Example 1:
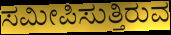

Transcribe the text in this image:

ಸಮೀಪಿಸುತ್ತಿರುವ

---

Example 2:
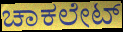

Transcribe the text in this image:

ಚಾಕಲೇಟ್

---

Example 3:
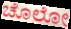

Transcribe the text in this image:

ಚೊಲೋ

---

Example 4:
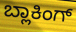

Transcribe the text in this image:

ಬ್ಲಾಕಿಂಗ್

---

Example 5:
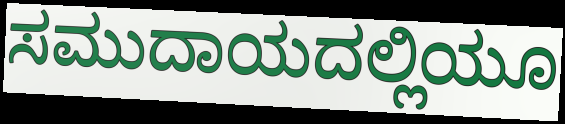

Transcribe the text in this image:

ಸಮುದಾಯದಲ್ಲಿಯೂ